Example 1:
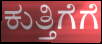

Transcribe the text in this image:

ಕುತ್ತಿಗೆಗೆ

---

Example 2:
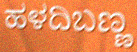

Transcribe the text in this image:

ಹಳದಿಬಣ್ಣ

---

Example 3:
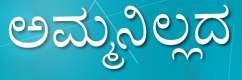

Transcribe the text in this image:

ಅಮ್ಮನಿಲ್ಲದ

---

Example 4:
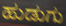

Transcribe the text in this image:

ಹುಡುಗು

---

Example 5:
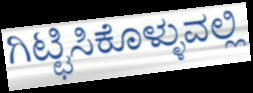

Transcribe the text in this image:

ಗಿಟ್ಟಿಸಿಕೊಳ್ಳುವಲ್ಲಿ